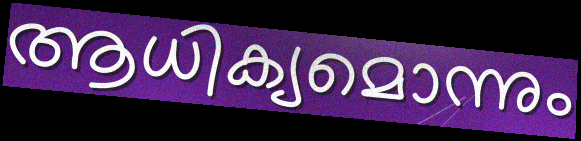
ആധിക്യമൊന്നും